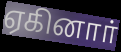
ஏகினார்